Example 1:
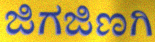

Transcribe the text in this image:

ಜಿಗಜಿಣಗಿ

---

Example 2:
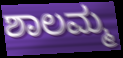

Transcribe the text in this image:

ಶಾಲಮ್ಮ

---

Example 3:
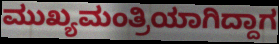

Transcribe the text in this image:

ಮುಖ್ಯಮಂತ್ರಿಯಾಗಿದ್ದಾಗ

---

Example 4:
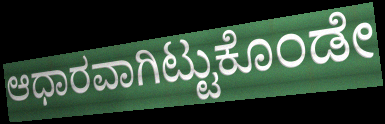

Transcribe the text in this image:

ಆಧಾರವಾಗಿಟ್ಟುಕೊಂಡೇ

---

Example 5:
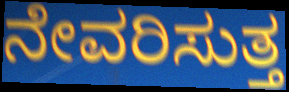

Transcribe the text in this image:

ನೇವರಿಸುತ್ತ